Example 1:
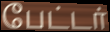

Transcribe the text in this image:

பேட்டர்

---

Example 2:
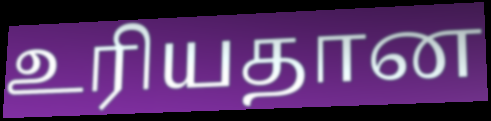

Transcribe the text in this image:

உரியதான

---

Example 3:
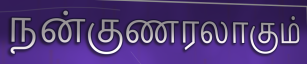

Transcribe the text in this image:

நன்குணரலாகும்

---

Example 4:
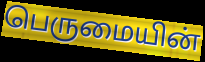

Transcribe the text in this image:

பெருமையின்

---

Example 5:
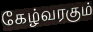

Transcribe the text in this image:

கேழ்வரகும்